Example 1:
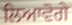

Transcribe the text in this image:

ਲਿਆਵੋਗੇ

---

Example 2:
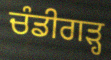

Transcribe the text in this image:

ਚੰਡੀਗੜ੍ਹ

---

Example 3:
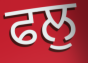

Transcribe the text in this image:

ਫਲੁ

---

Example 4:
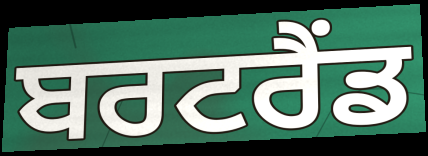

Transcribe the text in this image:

ਬਰਟਰੈਂਡ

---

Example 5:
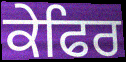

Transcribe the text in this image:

ਕੇਫਿਰ